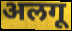
अलगू